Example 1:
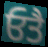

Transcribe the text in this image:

ਓਤੈ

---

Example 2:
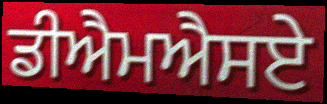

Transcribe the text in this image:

ਡੀਐਮਐਸਏ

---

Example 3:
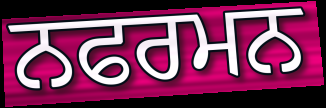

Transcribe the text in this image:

ਨਫਰਮਨ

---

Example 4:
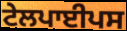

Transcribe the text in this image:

ਟੇਲਪਾਈਪਸ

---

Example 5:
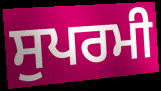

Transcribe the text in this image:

ਸੁਪਰਮੀ